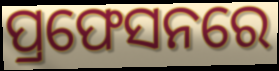
ପ୍ରଫେସନରେ